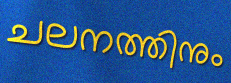
ചലനത്തിനും